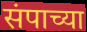
संपाच्या